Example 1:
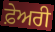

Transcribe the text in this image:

ਫ਼ੇਅਰੀ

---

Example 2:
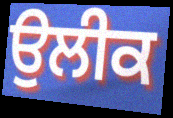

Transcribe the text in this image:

ਉਲੀਕ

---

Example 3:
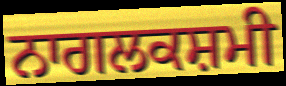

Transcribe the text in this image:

ਨਾਗਲਕਸ਼ਮੀ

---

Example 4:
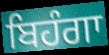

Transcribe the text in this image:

ਬਿਹੰਗਾ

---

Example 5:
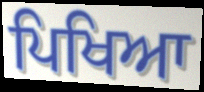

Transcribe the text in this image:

ਪਿਖਿਆ